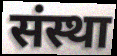
संस्था